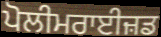
ਪੋਲੀਮਰਾਈਜ਼ਡ